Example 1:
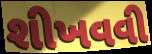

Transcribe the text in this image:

શીખવવી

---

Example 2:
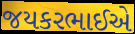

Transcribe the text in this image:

જયકરભાઈએ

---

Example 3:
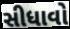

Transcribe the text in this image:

સીધાવો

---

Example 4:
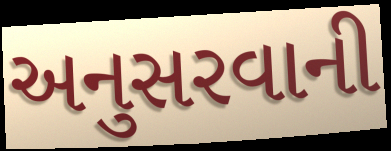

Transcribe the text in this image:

અનુસરવાની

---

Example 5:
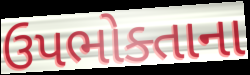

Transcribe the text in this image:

ઉપભોક્તાના